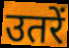
उतरें